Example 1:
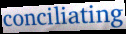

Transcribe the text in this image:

conciliating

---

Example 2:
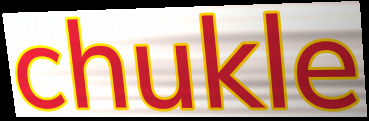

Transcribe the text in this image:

chukle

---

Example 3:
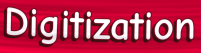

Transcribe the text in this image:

Digitization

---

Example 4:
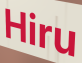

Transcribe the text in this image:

Hiru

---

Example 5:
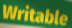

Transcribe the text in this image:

Writable